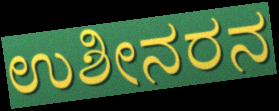
ಉಶೀನರನ